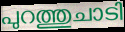
പുറത്തുചാടി